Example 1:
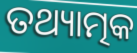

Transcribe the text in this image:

ତଥ୍ୟାତ୍ମକ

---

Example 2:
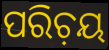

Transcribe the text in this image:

ପରିଚ଼ୟ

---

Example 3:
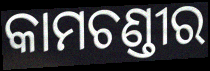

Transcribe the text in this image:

କାମଚଣ୍ଡୀର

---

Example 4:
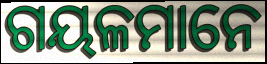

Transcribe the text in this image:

ଗୟଳମାନେ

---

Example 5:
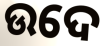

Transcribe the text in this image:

ଉଦେ